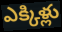
ఎక్కిళ్లు